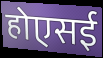
होएसई